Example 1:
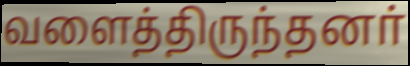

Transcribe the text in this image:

வளைத்திருந்தனர்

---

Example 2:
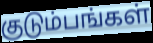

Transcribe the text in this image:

குடும்பங்கள்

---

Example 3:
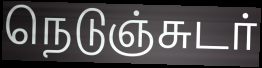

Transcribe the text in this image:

நெடுஞ்சுடர்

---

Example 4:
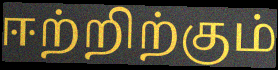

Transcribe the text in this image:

ஈற்றிற்கும்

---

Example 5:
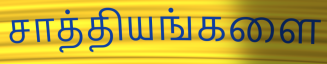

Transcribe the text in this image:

சாத்தியங்களை